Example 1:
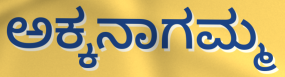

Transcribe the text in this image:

ಅಕ್ಕನಾಗಮ್ಮ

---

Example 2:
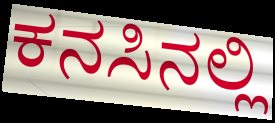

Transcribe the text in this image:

ಕನಸಿನಲ್ಲಿ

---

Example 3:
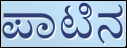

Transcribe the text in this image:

ಪಾಟಿನ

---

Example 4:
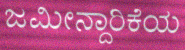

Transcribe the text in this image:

ಜಮೀನ್ದಾರಿಕೆಯ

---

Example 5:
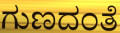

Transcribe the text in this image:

ಗುಣದಂತೆ